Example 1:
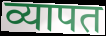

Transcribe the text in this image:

व्यापत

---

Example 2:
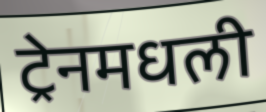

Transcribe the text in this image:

ट्रेनमधली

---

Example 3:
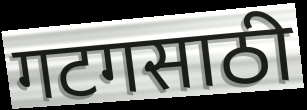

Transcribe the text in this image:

गटगसाठी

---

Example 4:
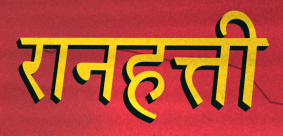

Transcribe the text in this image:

रानहत्ती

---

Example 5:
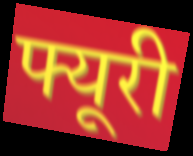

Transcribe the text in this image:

फ्यूरी